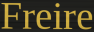
Freire